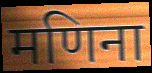
मणिना